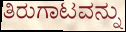
ತಿರುಗಾಟವನ್ನು